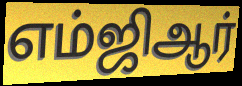
எம்ஜிஆர்